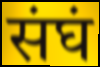
संघं